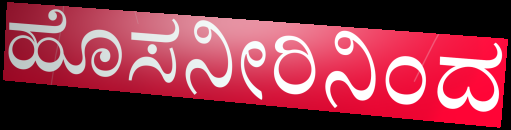
ಹೊಸನೀರಿನಿಂದ